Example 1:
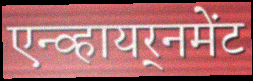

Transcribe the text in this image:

एन्व्हायर्नमेंट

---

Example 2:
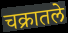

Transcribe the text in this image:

चक्रातले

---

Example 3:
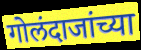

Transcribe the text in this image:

गोलंदाजांच्या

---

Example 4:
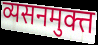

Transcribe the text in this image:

व्यसनमुक्त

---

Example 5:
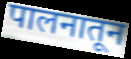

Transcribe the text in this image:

पालनातून